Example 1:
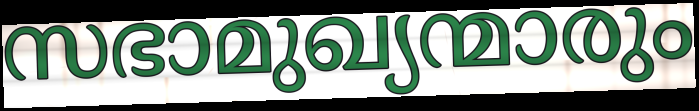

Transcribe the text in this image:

സഭാമുഖ്യന്മാരും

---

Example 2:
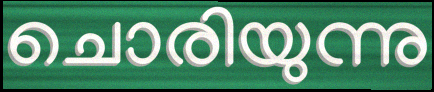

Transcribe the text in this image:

ചൊരിയുന്നു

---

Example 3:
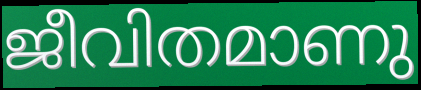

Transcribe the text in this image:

ജീവിതമാണു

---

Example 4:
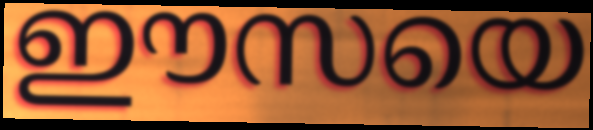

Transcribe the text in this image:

ഈസയെ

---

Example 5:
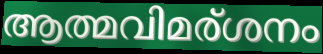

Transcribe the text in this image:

ആത്മവിമര്ശനം